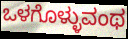
ಒಳಗೊಳ್ಳುವಂಥ